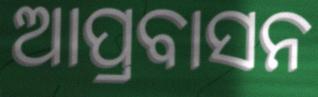
ଆପ୍ରବାସନ